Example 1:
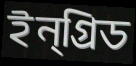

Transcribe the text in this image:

ইন্‌গ্রিড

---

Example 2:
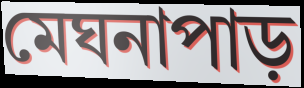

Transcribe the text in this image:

মেঘনাপাড়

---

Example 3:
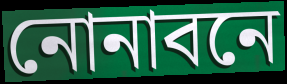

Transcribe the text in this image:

নোনাবনে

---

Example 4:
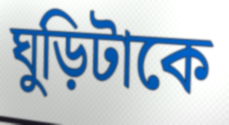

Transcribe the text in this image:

ঘুড়িটাকে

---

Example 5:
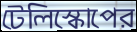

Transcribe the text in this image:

টেলিস্কোপের